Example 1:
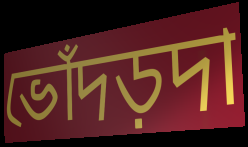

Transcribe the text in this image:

ভোঁদড়দা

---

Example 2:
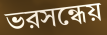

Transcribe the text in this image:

ভরসন্ধেয়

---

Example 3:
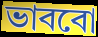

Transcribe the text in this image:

ভাববো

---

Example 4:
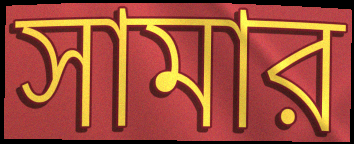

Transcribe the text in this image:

সামার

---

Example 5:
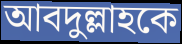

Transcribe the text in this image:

আবদুল্লাহকে